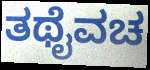
ತಥೈವಚ